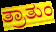
ತ್ರಾತುಂ